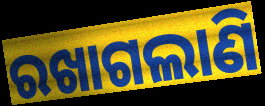
ରଖାଗଲାଣି